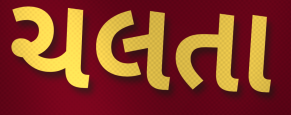
ચલતા